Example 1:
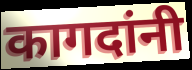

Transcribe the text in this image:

कागदांनी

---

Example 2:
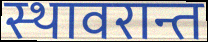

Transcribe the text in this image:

स्थावरान्त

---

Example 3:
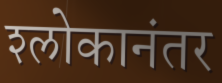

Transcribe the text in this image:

श्लोकानंतर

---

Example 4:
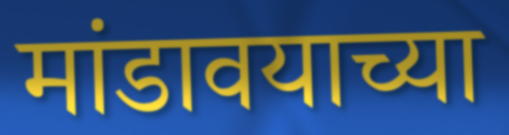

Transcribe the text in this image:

मांडावयाच्या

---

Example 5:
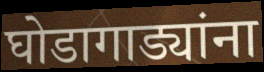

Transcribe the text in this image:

घोडागाड्यांना